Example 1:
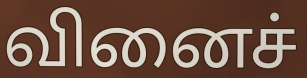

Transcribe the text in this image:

வினைச்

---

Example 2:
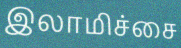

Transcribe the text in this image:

இலாமிச்சை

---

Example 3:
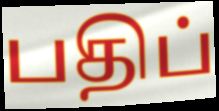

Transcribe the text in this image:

பதிப்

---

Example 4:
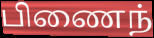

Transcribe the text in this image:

பிணைந்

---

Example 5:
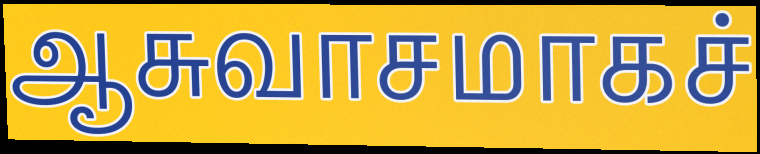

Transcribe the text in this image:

ஆசுவாசமாகச்